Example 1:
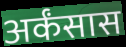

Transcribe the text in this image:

अर्कंसास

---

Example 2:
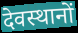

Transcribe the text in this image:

देवस्थानों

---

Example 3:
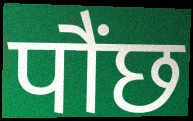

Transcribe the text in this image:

पौंछ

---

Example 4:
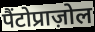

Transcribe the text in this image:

पैंटोप्राज़ोल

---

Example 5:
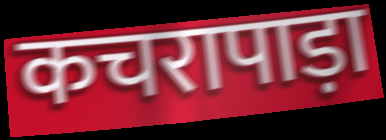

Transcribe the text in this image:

कचरापाड़ा